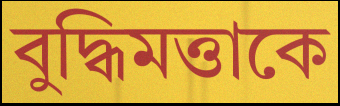
বুদ্ধিমত্তাকে